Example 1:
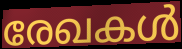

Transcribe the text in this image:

രേഖകൾ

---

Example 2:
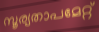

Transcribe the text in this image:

സൂര്യതാപമേറ്റ്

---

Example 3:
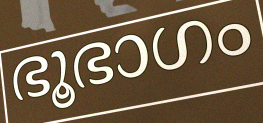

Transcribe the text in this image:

ഭൂഭാഗം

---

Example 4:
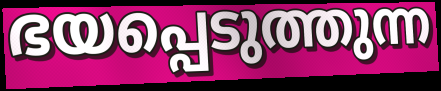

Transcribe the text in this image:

ഭയപ്പെടുത്തുന്ന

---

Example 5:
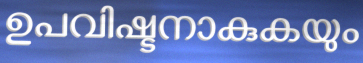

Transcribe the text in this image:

ഉപവിഷ്ടനാകുകയും